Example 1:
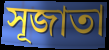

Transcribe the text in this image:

সূজাতা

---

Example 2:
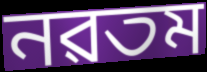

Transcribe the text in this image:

নৱতম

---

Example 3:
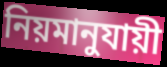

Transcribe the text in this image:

নিয়মানুযায়ী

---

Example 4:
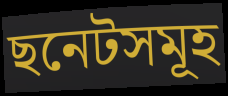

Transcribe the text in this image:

ছনেটসমূহ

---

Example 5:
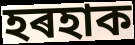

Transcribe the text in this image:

হৰহাক